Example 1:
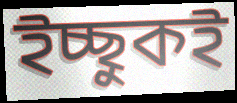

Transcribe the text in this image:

ইচ্ছুকই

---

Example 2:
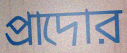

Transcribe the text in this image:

প্রাদোর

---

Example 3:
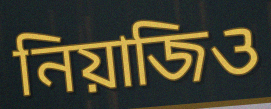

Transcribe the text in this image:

নিয়াজিও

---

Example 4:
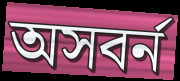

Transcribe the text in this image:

অসবর্ন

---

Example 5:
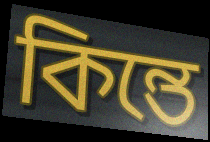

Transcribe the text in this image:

কিন্তে